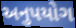
અનુપયોગ